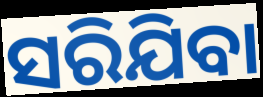
ସରିଯିବା